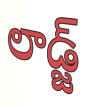
లాడ్జ్